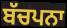
ਬੱਚਪਨਾ